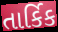
તાર્કિક